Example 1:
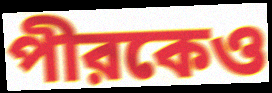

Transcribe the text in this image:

পীরকেও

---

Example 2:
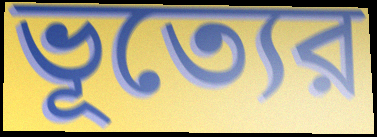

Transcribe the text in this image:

ভূত্যের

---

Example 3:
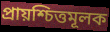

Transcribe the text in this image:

প্রায়শ্চিত্তমূলক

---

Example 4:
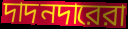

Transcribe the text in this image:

দাদনদারেরা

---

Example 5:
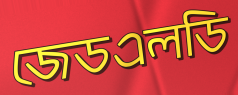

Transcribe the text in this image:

জেডএলডি